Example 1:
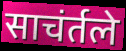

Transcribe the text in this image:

साचंर्तले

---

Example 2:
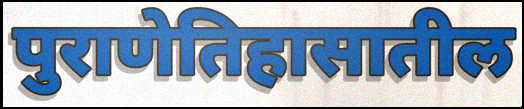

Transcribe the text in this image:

पुराणेतिहासातील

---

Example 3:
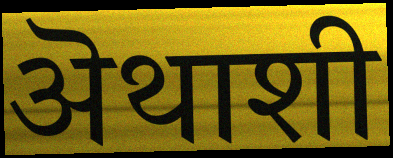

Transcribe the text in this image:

ऄथाशी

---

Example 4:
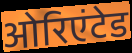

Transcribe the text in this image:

ओरिएंटेड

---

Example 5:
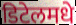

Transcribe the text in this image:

डिटेलमधे